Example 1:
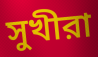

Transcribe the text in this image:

সুখীরা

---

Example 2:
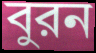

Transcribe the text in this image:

বুরন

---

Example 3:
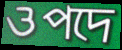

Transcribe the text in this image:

ওপদে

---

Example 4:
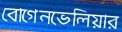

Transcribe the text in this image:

বোগেনভেলিয়ার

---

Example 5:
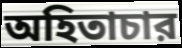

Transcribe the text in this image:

অহিতাচার